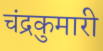
चंद्रकुमारी